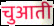
चुआती